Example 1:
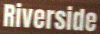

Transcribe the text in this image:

Riverside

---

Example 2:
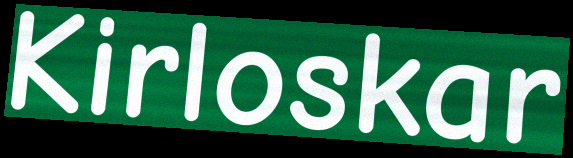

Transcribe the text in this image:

Kirloskar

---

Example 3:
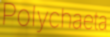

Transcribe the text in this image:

Polychaeta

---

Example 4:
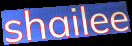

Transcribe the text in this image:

shailee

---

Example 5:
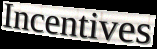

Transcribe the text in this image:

Incentives